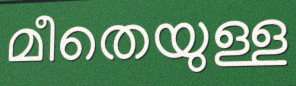
മീതെയുള്ള